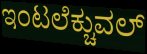
ಇಂಟಲೆಕ್ಚುವಲ್